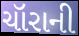
ચૉરાની